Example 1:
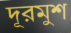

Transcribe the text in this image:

দূরমুশ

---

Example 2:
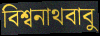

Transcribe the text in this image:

বিশ্বনাথবাবু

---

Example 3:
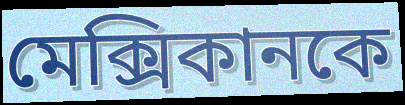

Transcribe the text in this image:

মেক্সিকানকে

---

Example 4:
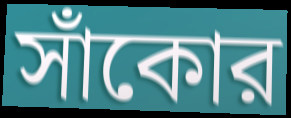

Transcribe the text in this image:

সাঁকোর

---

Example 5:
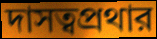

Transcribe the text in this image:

দাসত্বপ্রথার